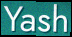
Yash